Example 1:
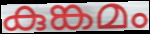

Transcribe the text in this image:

കുങ്കമം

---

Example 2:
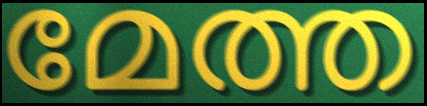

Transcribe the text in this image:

മേത്ത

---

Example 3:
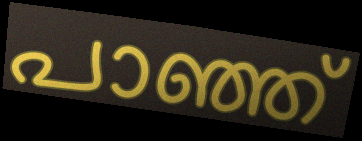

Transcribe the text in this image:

പാഞ്ഞ്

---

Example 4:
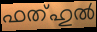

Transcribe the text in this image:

ഫത്ഹുൽ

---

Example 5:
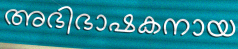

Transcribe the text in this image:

അഭിഭാഷകനായ